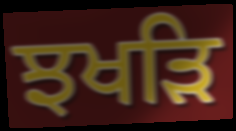
ਝਖੜਿ